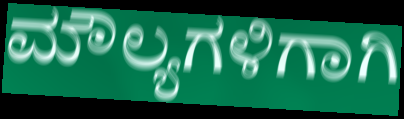
ಮೌಲ್ಯಗಳಿಗಾಗಿ